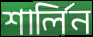
শার্লিন